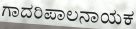
ಗಾದರಿಪಾಲನಾಯಕ